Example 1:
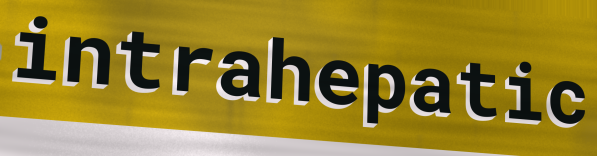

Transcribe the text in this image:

intrahepatic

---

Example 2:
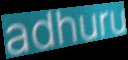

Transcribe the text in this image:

adhuru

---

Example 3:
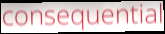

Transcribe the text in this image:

consequential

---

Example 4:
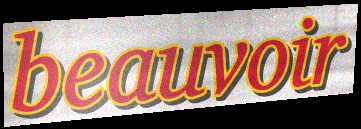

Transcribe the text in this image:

beauvoir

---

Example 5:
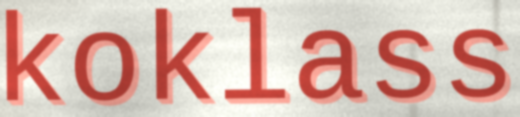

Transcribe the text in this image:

koklass